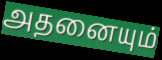
அதனையும்